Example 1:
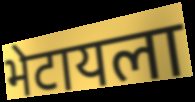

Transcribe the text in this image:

भेटायला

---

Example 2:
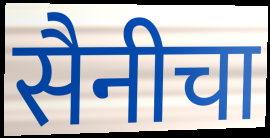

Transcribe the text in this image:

सैनीचा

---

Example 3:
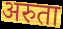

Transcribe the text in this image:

अरुता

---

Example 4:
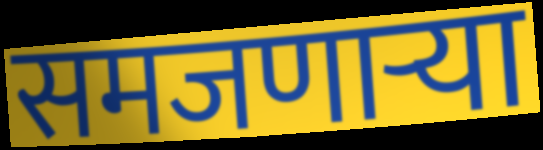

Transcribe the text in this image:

समजणाऱ्या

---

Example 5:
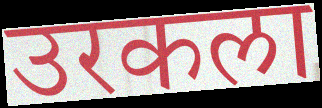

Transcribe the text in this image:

उरकला